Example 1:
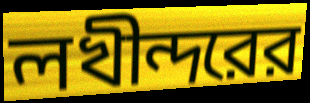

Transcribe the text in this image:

লখীন্দরের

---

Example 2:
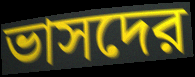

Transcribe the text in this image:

ভাসদের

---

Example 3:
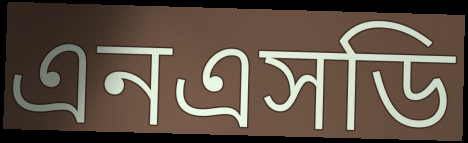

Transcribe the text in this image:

এনএসডি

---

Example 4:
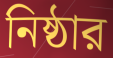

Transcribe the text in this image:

নিষ্ঠার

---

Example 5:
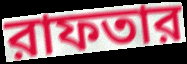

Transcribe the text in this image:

রাফতার